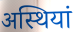
अस्थियां